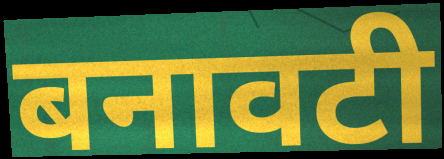
बनावटी